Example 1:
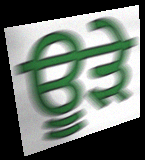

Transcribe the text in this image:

ਊੜੇ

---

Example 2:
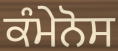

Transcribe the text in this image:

ਕੰਮੇਨੋਸ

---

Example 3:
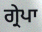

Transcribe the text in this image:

ਗ੍ਰੇਪਾ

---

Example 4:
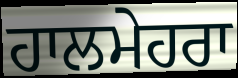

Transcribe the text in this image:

ਹਾਲਮੇਹਰਾ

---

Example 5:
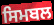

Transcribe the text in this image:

ਸਿਮਬਲ